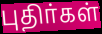
புதிர்கள்